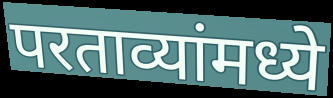
परताव्यांमध्ये